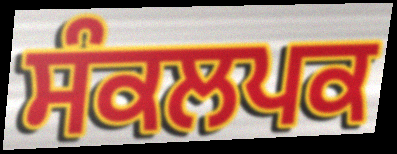
ਸੰਕਲਪਕ